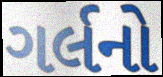
ગર્લનો